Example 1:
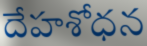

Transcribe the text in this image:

దేహశోధన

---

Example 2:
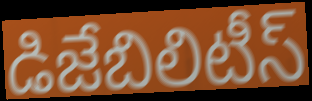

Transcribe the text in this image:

డిజేబిలిటీస్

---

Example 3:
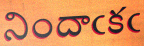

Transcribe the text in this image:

నిందాఁకఁ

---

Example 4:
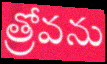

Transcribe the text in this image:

త్రోవను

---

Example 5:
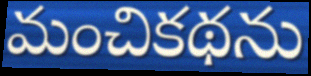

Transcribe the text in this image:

మంచికథను